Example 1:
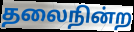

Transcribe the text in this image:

தலைநின்ற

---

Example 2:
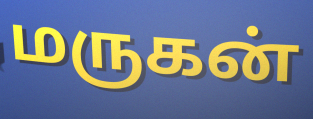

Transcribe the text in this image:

மருகன்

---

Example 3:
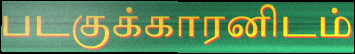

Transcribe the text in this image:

படகுக்காரனிடம்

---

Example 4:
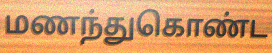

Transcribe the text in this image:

மணந்துகொண்ட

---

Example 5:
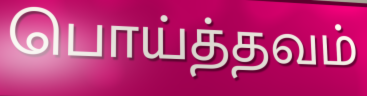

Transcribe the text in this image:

பொய்த்தவம்